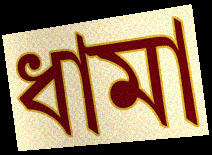
ধামা